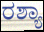
ರಶ್ಯಾ